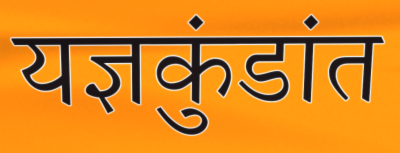
यज्ञकुंडांत